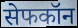
सेफकॉन